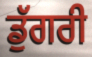
ਡੁੱਗਰੀ